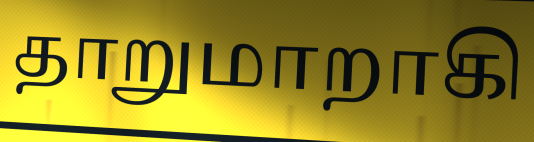
தாறுமாறாகி